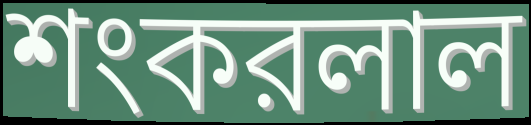
শংকরলাল